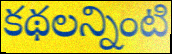
కథలన్నింటి